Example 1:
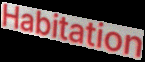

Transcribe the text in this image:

Habitation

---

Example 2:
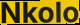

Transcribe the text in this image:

Nkolo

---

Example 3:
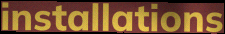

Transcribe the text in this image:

installations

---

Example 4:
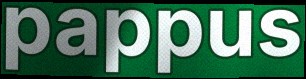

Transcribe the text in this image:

pappus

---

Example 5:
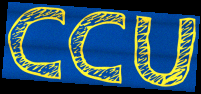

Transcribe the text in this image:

CCU